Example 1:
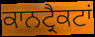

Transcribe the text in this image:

ਕਾਨਟ੍ਰੈਕਟਾਂ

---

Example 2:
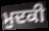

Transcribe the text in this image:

ਮੁਦਕੀ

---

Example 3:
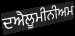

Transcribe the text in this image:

ਦਐਲੂਮੀਨੀਅਮ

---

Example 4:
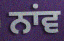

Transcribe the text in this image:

ਨਾਂਵ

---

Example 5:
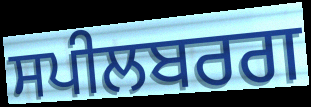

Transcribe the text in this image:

ਸਪੀਲਬਰਗ